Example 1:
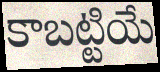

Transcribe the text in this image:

కాబట్టియే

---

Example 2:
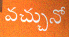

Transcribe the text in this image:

వచ్చునో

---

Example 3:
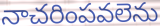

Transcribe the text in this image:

నాచరింపవలెను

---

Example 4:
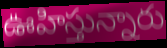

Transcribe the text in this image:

ఊహిస్తున్నారు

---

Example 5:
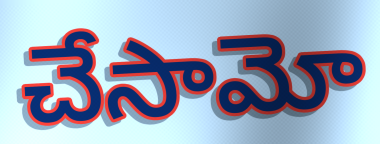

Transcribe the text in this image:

చేసామో